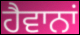
ਹੈਵਾਨਾਂ